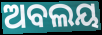
ଅବଲୟ